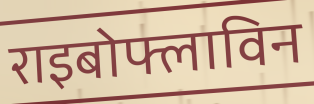
राइबोफ्लाविन